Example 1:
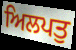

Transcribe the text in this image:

ਅਿਲਪਤੁ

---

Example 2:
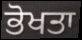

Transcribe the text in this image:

ਭੋਖਤਾ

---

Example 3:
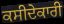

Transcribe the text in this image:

ਕਸੀਦੇਕਾਰੀ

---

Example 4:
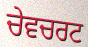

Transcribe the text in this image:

ਚੇਵਚਰਟ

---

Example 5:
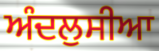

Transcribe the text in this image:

ਅੰਦਲੁਸੀਆ